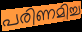
പരിണമിച്ച